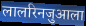
लालरिनजुआला